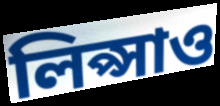
লিপ্সাও